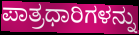
ಪಾತ್ರಧಾರಿಗಳನ್ನು